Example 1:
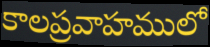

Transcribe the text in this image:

కాలప్రవాహములో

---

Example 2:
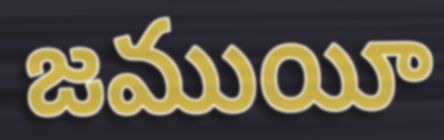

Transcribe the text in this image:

జముయీ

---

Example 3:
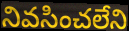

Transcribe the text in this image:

నివసించలేని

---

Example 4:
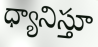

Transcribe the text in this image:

ధ్యానిస్తూ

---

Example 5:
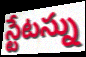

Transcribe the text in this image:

స్టేటస్ను